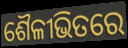
ଶୈଳୀଭିତରେ